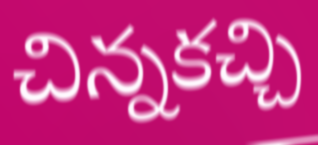
చిన్నకచ్చి